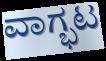
ವಾಗ್ಭಟ